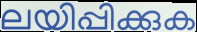
ലയിപ്പിക്കുക